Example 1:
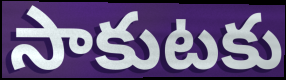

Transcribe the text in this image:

సాకుటకు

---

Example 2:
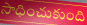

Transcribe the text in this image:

సాధించుకుంది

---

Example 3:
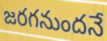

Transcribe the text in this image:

జరగనుందనే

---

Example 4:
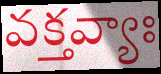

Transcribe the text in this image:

వక్తవ్యాః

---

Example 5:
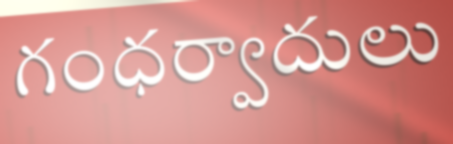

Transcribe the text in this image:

గంధర్వాదులు